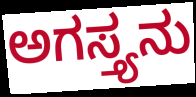
ಅಗಸ್ತ್ಯನು